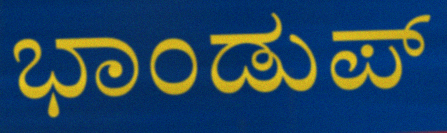
ಭಾಂಡುಪ್